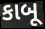
કાબૂ